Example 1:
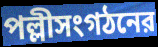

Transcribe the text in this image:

পল্লীসংগঠনের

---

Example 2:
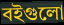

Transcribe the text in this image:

বইগুলো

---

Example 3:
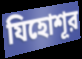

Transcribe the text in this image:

যিহোশূর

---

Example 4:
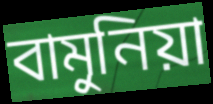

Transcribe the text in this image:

বামুনিয়া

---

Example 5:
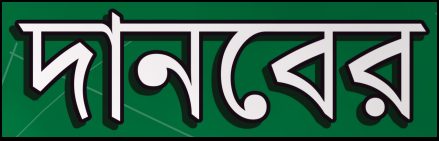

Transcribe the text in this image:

দানবের